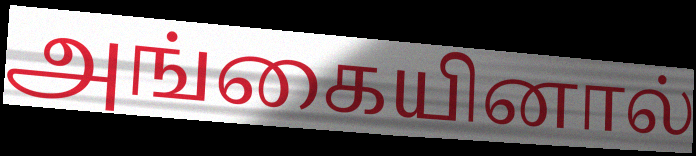
அங்கையினால்